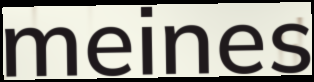
meines